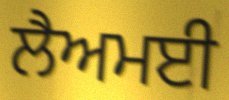
ਲੈਅਮਈ